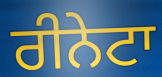
ਰੀਨੇਟਾ